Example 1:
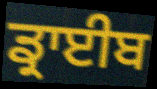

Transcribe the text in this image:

ਡ੍ਰਾਈਬ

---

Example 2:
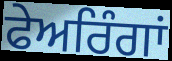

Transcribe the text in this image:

ਫੇਅਰਿੰਗਾਂ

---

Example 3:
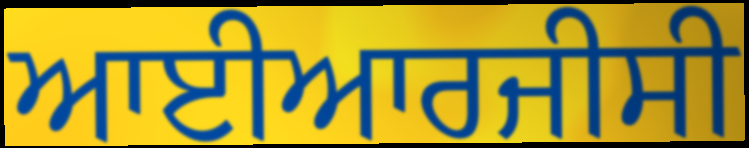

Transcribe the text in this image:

ਆਈਆਰਜੀਸੀ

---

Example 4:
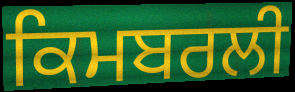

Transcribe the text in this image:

ਕਿਮਬਰਲੀ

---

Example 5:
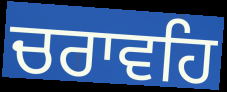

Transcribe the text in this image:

ਚਰਾਵਹਿ